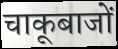
चाकूबाजों